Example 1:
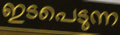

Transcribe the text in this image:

ഇടപെടുന്ന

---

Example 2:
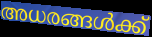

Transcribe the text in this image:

അധരങ്ങൾക്ക്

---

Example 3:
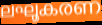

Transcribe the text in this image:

ലഘൂകരണ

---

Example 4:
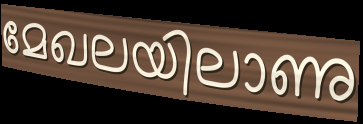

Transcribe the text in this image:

മേഖലയിലാണു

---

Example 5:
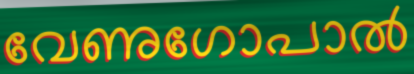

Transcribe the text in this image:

വേണുഗോപാൽ